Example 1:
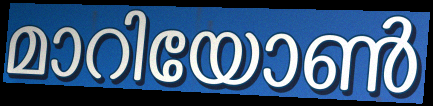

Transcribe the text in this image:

മാറിയോൺ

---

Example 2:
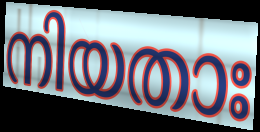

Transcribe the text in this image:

നിയതാഃ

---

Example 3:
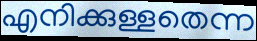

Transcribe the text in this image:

എനിക്കുള്ളതെന്ന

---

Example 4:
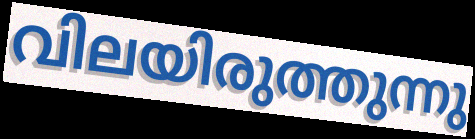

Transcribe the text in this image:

വിലയിരുത്തുന്നു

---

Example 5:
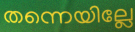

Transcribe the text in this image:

തന്നെയില്ലേ